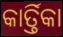
କାର୍ତ୍ତିକା